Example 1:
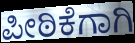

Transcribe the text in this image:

ಪೀಠಿಕೆಗಾಗಿ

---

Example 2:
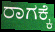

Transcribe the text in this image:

ರಾಗಕ್ಕೆ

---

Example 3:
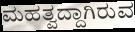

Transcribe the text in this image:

ಮಹತ್ವದ್ದಾಗಿರುವ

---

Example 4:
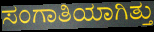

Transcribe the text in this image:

ಸಂಗಾತಿಯಾಗಿತ್ತು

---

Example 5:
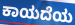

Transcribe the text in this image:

ಕಾಯದೆಯ